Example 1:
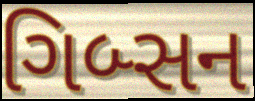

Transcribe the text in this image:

ગિબ્સન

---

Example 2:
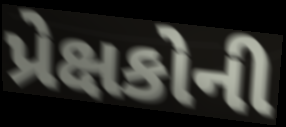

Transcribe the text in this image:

પ્રેક્ષકોની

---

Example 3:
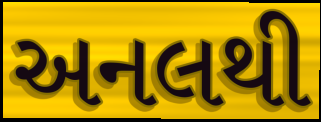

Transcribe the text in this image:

અનલથી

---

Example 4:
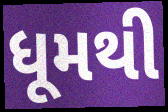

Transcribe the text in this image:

ધૂમથી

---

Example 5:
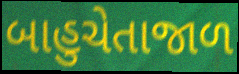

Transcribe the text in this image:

બાહુચેતાજાળ